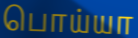
பொய்யா